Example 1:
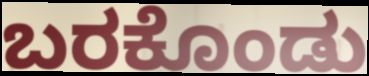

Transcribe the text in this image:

ಬರಕೊಂಡು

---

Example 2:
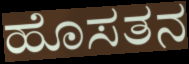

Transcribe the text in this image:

ಹೊಸತನ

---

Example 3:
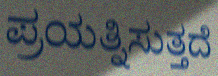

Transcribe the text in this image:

ಪ್ರಯತ್ನಿಸುತ್ತದೆ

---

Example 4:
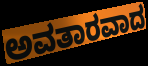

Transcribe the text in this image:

ಅವತಾರವಾದ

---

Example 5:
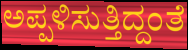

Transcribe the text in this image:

ಅಪ್ಪಳಿಸುತ್ತಿದ್ದಂತೆ